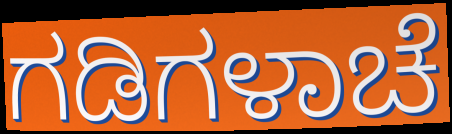
ಗಡಿಗಳಾಚೆ